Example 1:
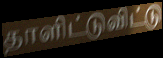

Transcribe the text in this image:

தாளிட்டுவிட்டு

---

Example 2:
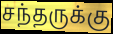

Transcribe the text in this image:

சந்தருக்கு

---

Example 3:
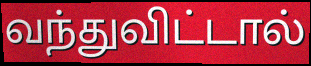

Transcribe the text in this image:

வந்துவிட்டால்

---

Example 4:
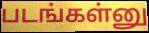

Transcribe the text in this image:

படங்கள்னு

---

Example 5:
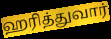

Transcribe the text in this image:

ஹரித்துவார்